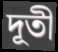
দূতী